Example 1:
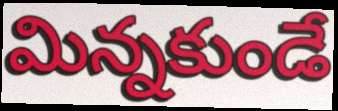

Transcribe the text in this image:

మిన్నకుండే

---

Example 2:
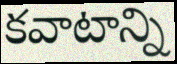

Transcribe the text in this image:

కవాటాన్ని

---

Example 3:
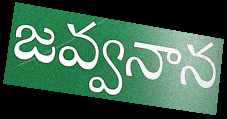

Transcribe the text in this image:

జవ్వనాన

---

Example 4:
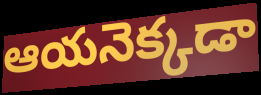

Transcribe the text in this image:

ఆయనెక్కడా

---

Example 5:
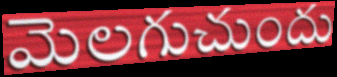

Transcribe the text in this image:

మెలగుచుందు